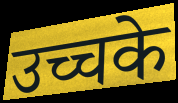
उच्चके